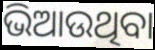
ଭିଆଉଥିବା